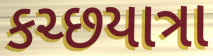
કચ્છયાત્રા